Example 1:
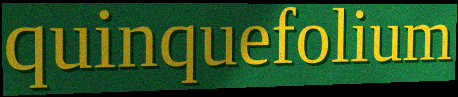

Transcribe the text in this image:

quinquefolium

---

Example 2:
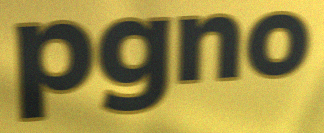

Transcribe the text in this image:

pgno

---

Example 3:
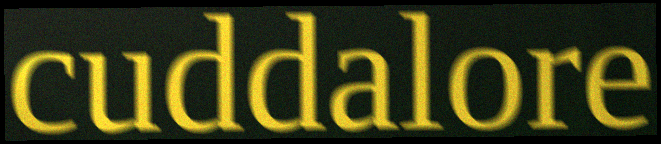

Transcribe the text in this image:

cuddalore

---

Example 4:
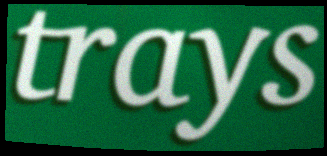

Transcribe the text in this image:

trays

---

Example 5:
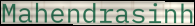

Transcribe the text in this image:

Mahendrasinh